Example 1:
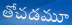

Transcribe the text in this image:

తోచడమూ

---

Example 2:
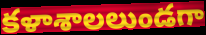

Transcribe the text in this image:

కళాశాలలుండగా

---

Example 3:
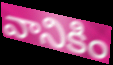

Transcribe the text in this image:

వానికిం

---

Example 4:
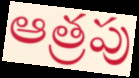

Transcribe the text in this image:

ఆత్రపు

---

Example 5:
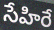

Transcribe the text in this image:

సేహిరే